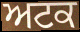
ਅਟਕ